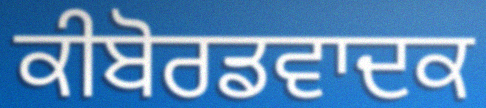
ਕੀਬੋਰਡਵਾਦਕ